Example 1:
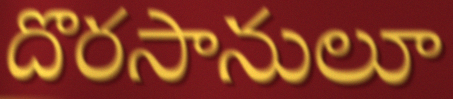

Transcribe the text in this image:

దొరసానులూ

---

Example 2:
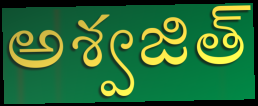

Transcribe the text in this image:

అశ్వజిత్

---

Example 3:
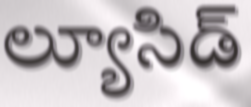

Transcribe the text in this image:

ల్యూసిడ్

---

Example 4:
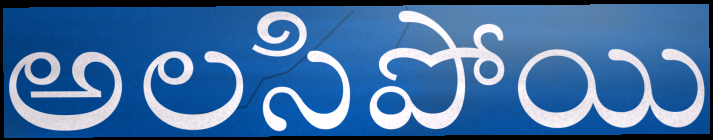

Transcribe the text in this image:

అలసిపోయి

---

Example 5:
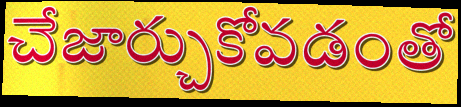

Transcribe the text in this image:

చేజార్చుకోవడంతో